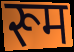
रूम